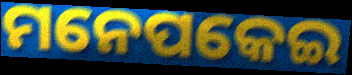
ମନେପକେଇ